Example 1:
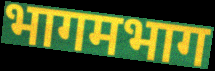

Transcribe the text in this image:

भागमभाग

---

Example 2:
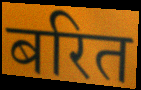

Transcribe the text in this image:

बरित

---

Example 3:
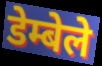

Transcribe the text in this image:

डेम्बेले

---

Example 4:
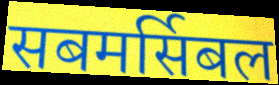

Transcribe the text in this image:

सबमर्सिबल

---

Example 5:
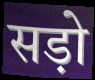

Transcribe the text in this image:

सड़ो